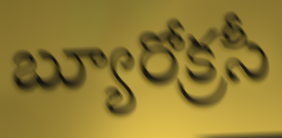
బ్యూరోక్రసీ